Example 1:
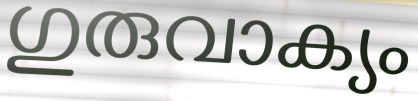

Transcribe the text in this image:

ഗുരുവാക്യം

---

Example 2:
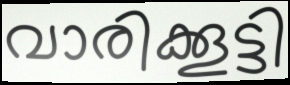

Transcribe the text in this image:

വാരിക്കൂട്ടി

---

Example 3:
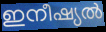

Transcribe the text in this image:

ഇനീഷ്യൽ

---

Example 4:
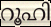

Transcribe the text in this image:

റൂഹി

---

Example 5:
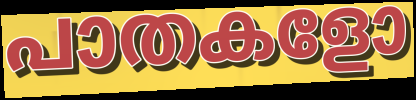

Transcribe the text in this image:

പാതകളോ